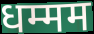
धम्मम